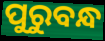
ପୁରୁବନ୍ଧ